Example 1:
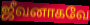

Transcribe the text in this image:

ஜீவனாகவே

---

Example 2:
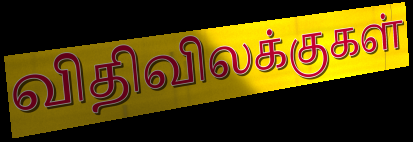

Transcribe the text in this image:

விதிவிலக்குகள்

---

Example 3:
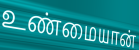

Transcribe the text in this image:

உண்மையான்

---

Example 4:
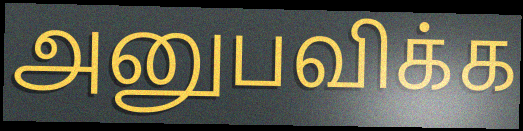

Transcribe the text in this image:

அனுபவிக்க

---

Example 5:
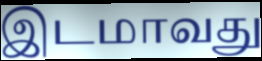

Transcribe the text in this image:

இடமாவது